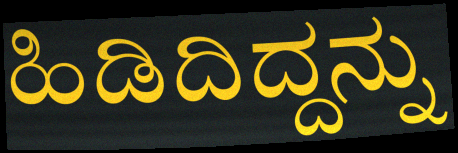
ಹಿಡಿದಿದ್ದನ್ನು